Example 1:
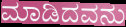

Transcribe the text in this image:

ಮಾಡಿದವನು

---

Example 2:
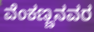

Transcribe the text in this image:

ವೆಂಕಣ್ಣನವರ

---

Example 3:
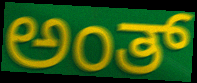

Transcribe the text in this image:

ಅಂತ್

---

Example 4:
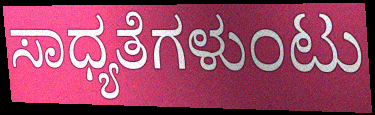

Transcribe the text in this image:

ಸಾಧ್ಯತೆಗಳುಂಟು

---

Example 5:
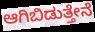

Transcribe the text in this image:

ಆಗಿಬಿಡುತ್ತೇನೆ